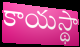
కాయస్థా